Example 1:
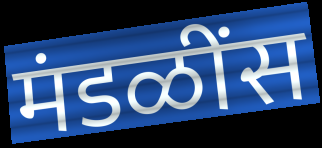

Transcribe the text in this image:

मंडळींस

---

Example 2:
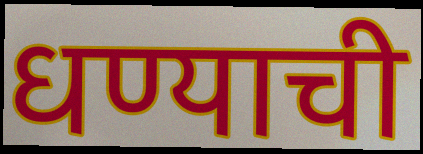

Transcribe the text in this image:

धण्याची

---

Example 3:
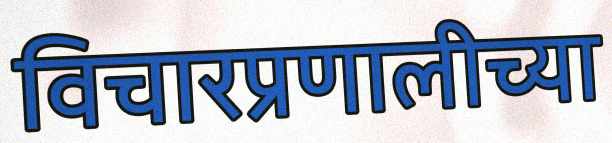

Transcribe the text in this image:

विचारप्रणालीच्या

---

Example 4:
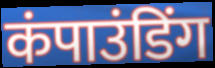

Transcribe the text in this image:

कंपाउंडिंग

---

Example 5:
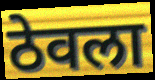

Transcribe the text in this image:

ठेवला